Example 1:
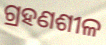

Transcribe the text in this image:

ଗ୍ରହଣଶୀଳ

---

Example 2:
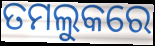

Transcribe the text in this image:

ତମଲୁକରେ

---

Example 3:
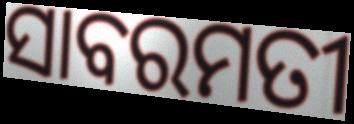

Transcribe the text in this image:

ସାବରମତୀ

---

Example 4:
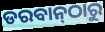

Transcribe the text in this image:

ଡରବାନ୍‌ଠାରୁ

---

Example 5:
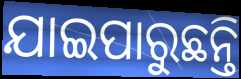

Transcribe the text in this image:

ଯାଇପାରୁଛନ୍ତି